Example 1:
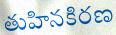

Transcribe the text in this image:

తుహినకిరణ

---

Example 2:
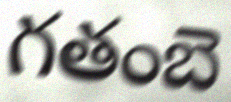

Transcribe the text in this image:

గతంబె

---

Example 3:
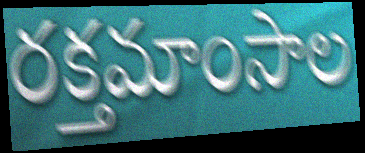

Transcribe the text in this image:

రక్తమాంసాల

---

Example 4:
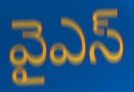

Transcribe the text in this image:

వైఎస్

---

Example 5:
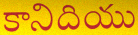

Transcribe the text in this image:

కానిదియు